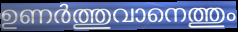
ഉണർത്തുവാനെത്തും